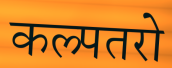
कल्पतरो